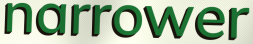
narrower